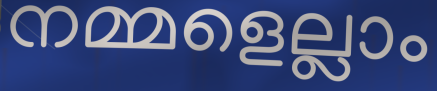
നമ്മളെല്ലാം